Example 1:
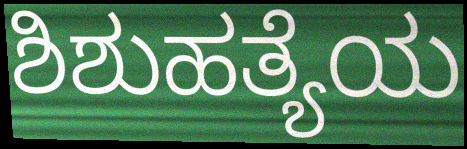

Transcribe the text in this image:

ಶಿಶುಹತ್ಯೆಯ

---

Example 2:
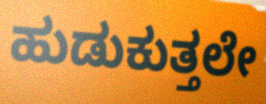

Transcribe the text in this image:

ಹುಡುಕುತ್ತಲೇ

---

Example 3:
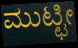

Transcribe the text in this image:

ಮುಟ್ಟೀ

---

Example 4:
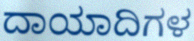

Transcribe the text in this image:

ದಾಯಾದಿಗಳ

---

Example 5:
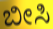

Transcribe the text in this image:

ಬೀಸಿ